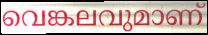
വെങ്കലവുമാണ്